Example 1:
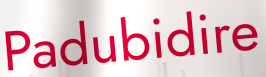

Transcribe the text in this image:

Padubidire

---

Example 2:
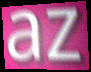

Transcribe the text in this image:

az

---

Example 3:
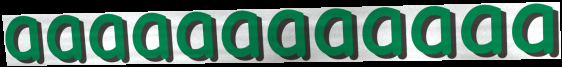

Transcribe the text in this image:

aaaaaaaaaaaa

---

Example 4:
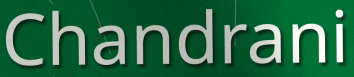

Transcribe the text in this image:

Chandrani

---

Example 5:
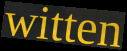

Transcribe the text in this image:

witten